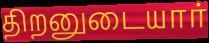
திறனுடையார்